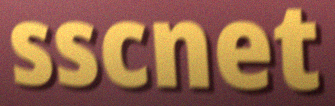
sscnet